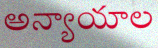
అన్యాయాల